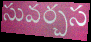
సువర్చస